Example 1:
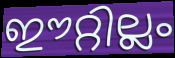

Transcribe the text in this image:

ഈറ്റില്ലം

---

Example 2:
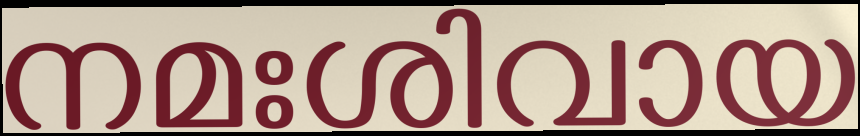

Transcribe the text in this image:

നമഃശിവായ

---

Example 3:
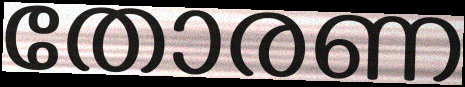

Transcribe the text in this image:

തോരണ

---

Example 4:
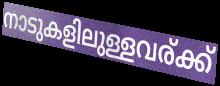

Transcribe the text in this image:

നാടുകളിലുള്ളവര്ക്ക്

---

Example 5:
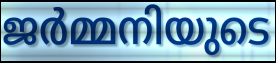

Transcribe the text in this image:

ജർമ്മനിയുടെ